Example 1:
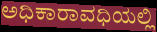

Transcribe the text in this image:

ಅಧಿಕಾರಾವಧಿಯಲ್ಲಿ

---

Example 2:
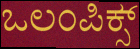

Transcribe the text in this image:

ಒಲಂಪಿಕ್ಸ್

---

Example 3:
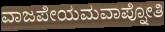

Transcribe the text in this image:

ವಾಜಪೇಯಮವಾಪ್ನೋತಿ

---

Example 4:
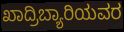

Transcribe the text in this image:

ಖಾದ್ರಿಬ್ಯಾರಿಯವರ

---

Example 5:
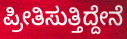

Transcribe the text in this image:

ಪ್ರೀತಿಸುತ್ತಿದ್ದೇನೆ